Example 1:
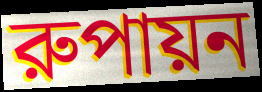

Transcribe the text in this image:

রুপায়ন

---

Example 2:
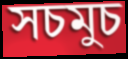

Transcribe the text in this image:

সচমুচ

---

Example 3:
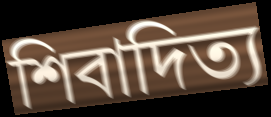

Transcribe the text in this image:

শিবাদিত্য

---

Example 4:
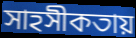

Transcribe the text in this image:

সাহসীকতায়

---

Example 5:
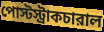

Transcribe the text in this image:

পোস্টস্ট্রাকচারাল